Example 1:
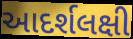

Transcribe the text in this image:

આદર્શલક્ષી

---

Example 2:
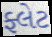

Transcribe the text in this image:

ફ્લેટ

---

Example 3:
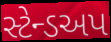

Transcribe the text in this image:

સ્ટેન્ડઅપ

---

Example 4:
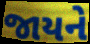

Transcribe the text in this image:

જાયને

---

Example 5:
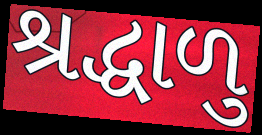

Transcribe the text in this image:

શ્રદ્ધાળુ